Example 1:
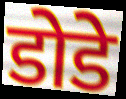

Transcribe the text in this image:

डोडे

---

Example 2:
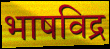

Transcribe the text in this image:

भाषविद्र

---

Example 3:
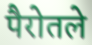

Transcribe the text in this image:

पैरोतले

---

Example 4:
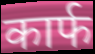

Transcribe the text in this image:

कार्फ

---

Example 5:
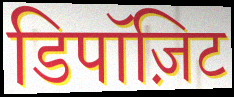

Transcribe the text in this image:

डिपॉज़िट